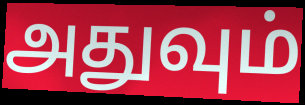
அதுவும்